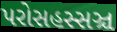
પરોસહસ્સઞ્ચ